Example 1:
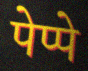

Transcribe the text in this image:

पेप्पे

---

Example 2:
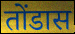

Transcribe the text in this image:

तोंडास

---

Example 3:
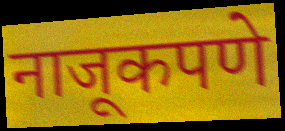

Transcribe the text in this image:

नाजूकपणे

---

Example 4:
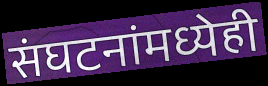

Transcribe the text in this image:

संघटनांमध्येही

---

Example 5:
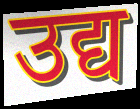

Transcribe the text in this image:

उद्य